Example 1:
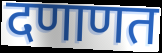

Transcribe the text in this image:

दणाणत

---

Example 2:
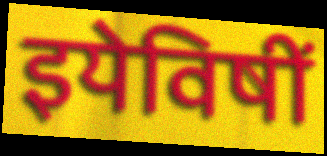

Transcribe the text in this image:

इयेविषीं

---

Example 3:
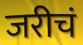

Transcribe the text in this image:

जरीचं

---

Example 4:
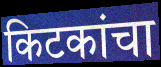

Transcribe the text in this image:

किटकांचा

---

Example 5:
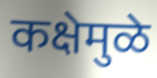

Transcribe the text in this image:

कक्षेमुळे